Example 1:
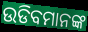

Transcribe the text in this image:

ଉଡିବମାନଙ୍କ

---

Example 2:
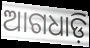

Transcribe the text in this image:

ଆଗଧାଡ଼ି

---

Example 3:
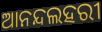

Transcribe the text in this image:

ଆନନ୍ଦଲହରୀ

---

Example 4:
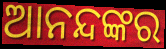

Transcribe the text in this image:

ଆନନ୍ଦଙ୍କର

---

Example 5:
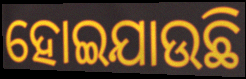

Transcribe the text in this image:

ହୋଇଯାଉଛି